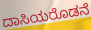
ದಾಸಿಯರೊಡನೆ